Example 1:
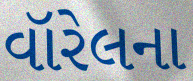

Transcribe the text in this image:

વૉરેલના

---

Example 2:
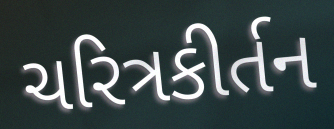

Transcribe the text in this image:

ચરિત્રકીર્તન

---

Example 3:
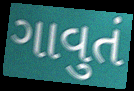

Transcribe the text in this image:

ગાવુતં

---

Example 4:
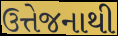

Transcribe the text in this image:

ઉત્તેજનાથી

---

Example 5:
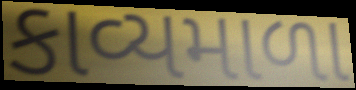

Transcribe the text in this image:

કાવ્યમાળા